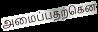
அமைப்பதற்கென